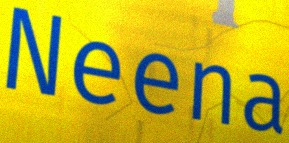
Neena